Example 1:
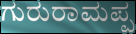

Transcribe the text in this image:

ಗುರುರಾಮಪ್ಪ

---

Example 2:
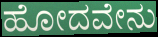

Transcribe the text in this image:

ಹೋದವೇನು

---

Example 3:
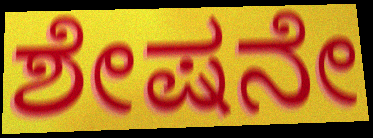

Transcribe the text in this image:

ಶೇಷನೇ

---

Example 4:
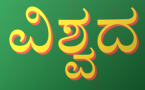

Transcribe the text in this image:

ವಿಶ್ವದ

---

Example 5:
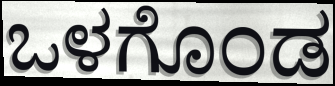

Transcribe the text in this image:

ಒಳಗೊಂಡ